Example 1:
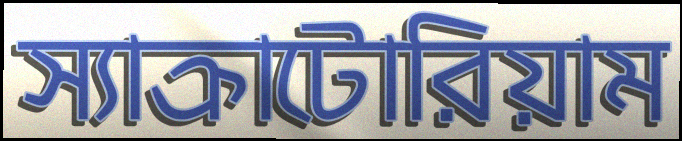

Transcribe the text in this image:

স্যাক্রাটোরিয়াম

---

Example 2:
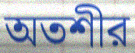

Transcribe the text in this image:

অতশীর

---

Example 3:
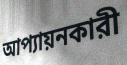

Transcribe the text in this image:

আপ্যায়নকারী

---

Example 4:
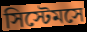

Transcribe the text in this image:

সিস্টেমসে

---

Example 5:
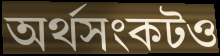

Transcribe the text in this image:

অর্থসংকটও